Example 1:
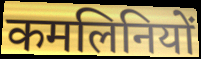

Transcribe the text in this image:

कमलिनियों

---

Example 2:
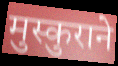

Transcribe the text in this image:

मुस्कुराने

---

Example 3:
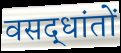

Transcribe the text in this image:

वसद्धांतों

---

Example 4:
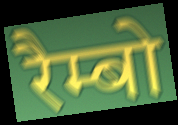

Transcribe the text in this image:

रैम्बो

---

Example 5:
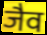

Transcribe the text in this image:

जैव